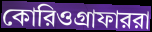
কোরিওগ্রাফাররা